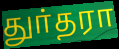
துர்தரா